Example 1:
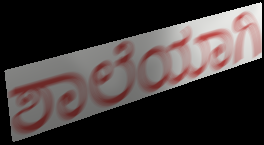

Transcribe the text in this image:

ಶಾಲೆಯಾಗಿ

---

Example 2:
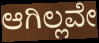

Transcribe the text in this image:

ಆಗಿಲ್ಲವೇ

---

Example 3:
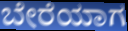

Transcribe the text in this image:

ಬೇರೆಯಾಗ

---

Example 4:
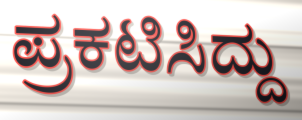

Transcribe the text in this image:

ಪ್ರಕಟಿಸಿದ್ದು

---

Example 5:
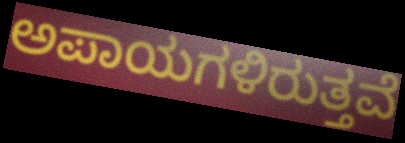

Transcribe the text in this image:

ಅಪಾಯಗಳಿರುತ್ತವೆ